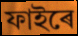
ফাইৰে